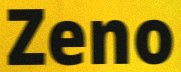
Zeno